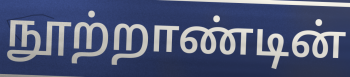
நூற்றாண்டின்